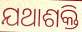
ଯଥାଶକ୍ତି